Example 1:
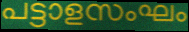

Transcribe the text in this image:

പട്ടാളസംഘം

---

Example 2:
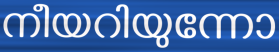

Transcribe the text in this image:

നീയറിയുന്നോ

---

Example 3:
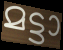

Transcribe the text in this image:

മട്ടാ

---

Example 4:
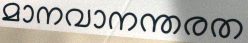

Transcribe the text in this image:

മാനവാനന്തരത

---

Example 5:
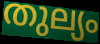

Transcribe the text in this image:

തുല്യം